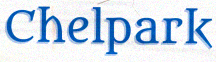
Chelpark